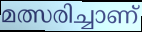
മത്സരിച്ചാണ്